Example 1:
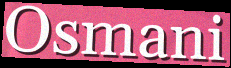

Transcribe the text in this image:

Osmani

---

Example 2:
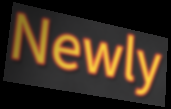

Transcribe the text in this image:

Newly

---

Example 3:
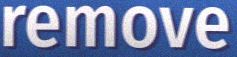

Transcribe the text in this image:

remove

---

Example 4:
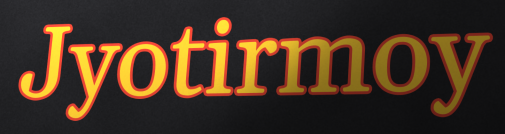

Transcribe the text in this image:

Jyotirmoy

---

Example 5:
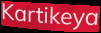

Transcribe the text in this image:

Kartikeya